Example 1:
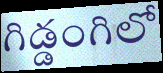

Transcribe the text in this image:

గిడ్డంగిలో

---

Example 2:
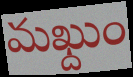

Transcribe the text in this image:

మఖ్దుం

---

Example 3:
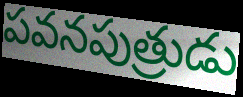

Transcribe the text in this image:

పవనపుత్రుడు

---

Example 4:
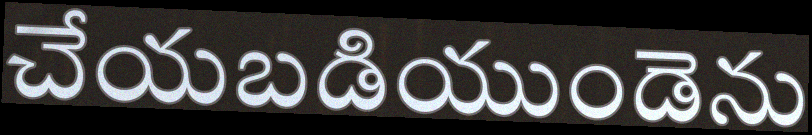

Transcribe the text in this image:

చేయబడియుండెను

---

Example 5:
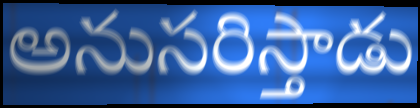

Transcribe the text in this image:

అనుసరిస్తాడు